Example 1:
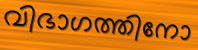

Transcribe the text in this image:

വിഭാഗത്തിനോ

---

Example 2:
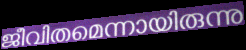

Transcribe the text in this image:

ജീവിതമെന്നായിരുന്നു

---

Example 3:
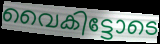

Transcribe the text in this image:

വൈകിട്ടോടെ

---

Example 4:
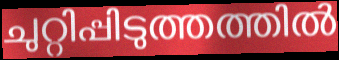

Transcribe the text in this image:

ചുറ്റിപ്പിടുത്തത്തിൽ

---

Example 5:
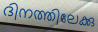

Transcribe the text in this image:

ദിനത്തിലേക്കു